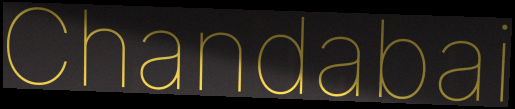
Chandabai